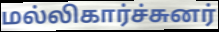
மல்லிகார்ச்சுனர்